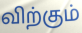
விற்கும்